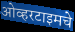
ओव्हरटाइमचे